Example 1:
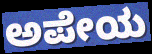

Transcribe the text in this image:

ಅಪೇಯ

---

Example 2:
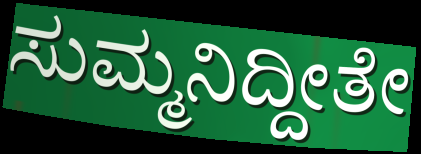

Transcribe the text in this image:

ಸುಮ್ಮನಿದ್ದೀತೇ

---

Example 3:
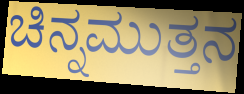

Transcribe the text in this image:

ಚಿನ್ನಮುತ್ತನ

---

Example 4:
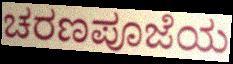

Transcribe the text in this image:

ಚರಣಪೂಜೆಯ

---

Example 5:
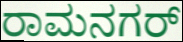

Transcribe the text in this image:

ರಾಮನಗರ್